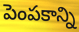
పెంపకాన్ని